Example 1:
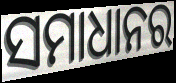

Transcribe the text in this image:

ସମାଧାନର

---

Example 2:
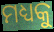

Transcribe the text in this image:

ମଧ୍ୟକୁ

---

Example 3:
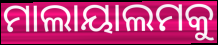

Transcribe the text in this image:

ମାଲାୟାଲମକୁ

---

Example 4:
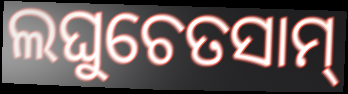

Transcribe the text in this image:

ଲଘୁଚେତସାମ୍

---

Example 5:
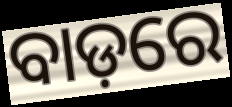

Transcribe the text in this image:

ବାଡ଼ରେ